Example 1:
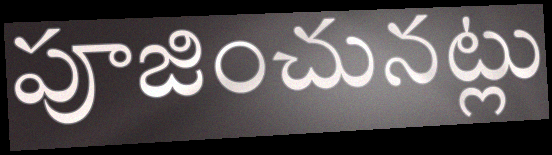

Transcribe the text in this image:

పూజించునట్లు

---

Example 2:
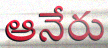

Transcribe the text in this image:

ఆనేరు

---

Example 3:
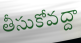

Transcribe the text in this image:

తీసుకోవద్దా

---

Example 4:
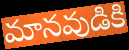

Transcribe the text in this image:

మానవుడికి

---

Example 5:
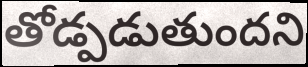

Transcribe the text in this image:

తోడ్పడుతుందని